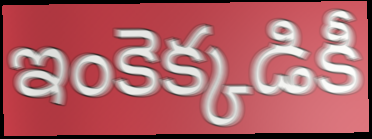
ఇంకెక్కడికీ